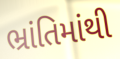
ભ્રાંતિમાંથી